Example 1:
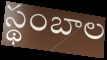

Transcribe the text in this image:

స్థంబాల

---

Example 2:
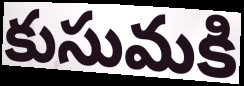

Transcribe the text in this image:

కుసుమకి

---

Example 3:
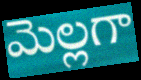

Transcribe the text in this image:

మెల్లగా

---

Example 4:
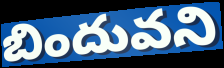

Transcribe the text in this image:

బిందువని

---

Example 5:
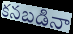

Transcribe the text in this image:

కనబడినా